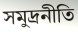
সমুদ্রনীতি